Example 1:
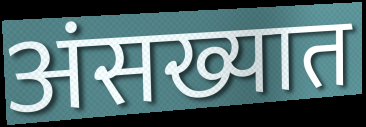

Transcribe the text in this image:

अंसख्यात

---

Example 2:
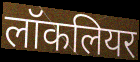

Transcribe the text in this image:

लॉकलियर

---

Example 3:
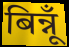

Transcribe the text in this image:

बिन्नूँ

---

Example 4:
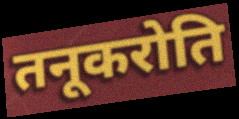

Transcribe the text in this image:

तनूकरोति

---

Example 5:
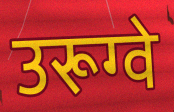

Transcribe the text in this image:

उरूग्वे